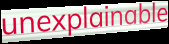
unexplainable